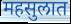
महसुलात